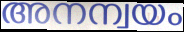
അനന്വയം